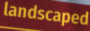
landscaped